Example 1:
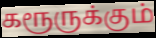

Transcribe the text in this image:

கரூருக்கும்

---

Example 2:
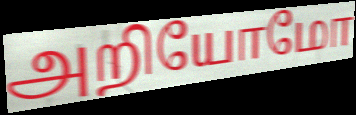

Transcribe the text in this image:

அறியோமோ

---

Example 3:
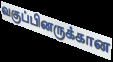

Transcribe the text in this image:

வகுப்பினருக்கான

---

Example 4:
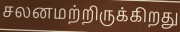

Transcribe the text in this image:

சலனமற்றிருக்கிறது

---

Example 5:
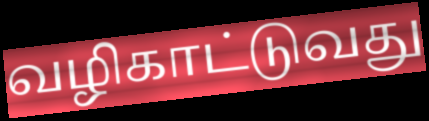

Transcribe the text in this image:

வழிகாட்டுவது